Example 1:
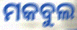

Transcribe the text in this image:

ମକବୁଲ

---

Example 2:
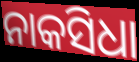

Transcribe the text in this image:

ନାକସିଧା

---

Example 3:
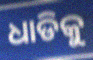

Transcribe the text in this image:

ଧାଡିକୁ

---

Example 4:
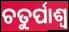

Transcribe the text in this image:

ଚତୁର୍ପାଶ୍ୱ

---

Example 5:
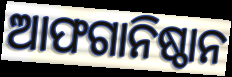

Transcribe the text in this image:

ଆଫଗାନିଷ୍ଠାନ